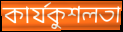
কাৰ্যকুশলতা